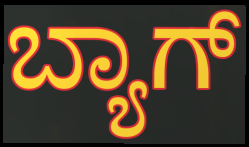
ಬ್ಯಾಗ್